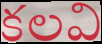
కలవి